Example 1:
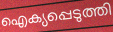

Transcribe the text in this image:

ഐക്യപ്പെടുത്തി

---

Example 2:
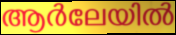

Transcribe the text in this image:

ആർലേയിൽ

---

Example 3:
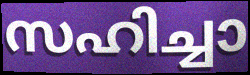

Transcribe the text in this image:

സഹിച്ചാ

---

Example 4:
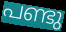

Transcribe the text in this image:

പണ്ടു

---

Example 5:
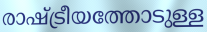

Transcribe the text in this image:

രാഷ്ട്രീയത്തോടുള്ള